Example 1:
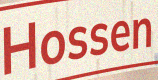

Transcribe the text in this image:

Hossen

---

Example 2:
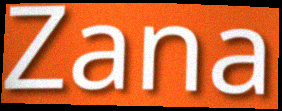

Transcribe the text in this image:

Zana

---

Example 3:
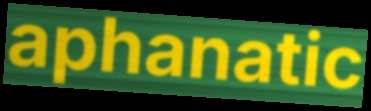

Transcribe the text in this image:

aphanatic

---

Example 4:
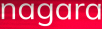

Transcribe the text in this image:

nagara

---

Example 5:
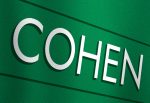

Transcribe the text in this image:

COHEN